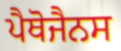
ਪੈਥੋਜੈਨਸ